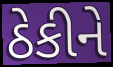
ઠેકીને